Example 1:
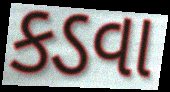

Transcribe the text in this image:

કડવા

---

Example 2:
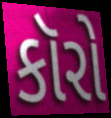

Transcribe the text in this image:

કૉરો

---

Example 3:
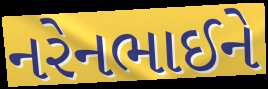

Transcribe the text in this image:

નરેનભાઈને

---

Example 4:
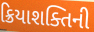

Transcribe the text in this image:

ક્રિયાશક્તિની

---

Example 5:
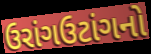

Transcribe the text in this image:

ઉરાંગઉટાંગનો